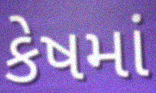
કેષમાં